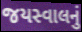
જયસ્વાલનું